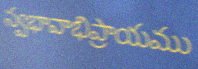
స్వభావాభిప్రాయము